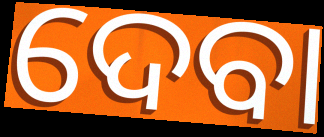
ଦେବା